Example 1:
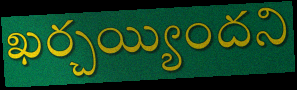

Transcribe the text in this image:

ఖర్చయ్యిందని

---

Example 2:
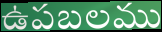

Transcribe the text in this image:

ఉపబలము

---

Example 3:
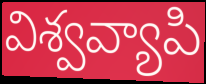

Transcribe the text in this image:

విశ్వవ్యాపి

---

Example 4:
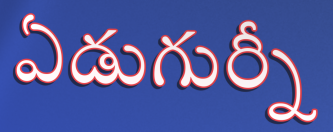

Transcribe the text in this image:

ఏడుగుర్నీ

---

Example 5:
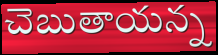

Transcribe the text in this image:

చెబుతాయన్న